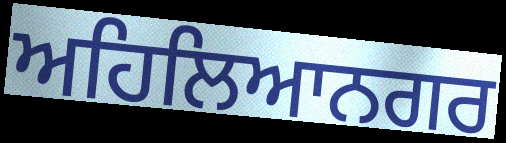
ਅਹਿਲਿਆਨਗਰ